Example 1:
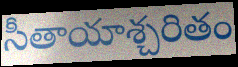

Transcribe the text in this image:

సీతాయాశ్చరితం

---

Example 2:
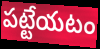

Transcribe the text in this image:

పట్టేయటం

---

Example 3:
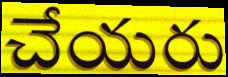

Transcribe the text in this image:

చేయరు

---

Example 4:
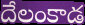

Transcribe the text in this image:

దేలంకాడ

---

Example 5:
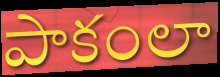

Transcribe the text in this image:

పాకంలా